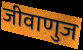
जीवाणुज